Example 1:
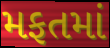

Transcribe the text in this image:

મફતમાં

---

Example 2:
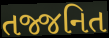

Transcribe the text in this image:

તજ્જનિત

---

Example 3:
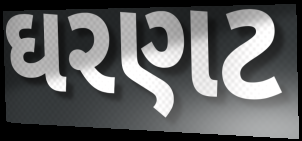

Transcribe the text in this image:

ઘરણટ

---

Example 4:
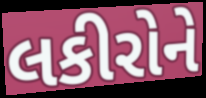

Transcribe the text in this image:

લકીરોને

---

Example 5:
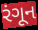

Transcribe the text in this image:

રંગૂન